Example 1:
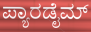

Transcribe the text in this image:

ಪ್ಯಾರಡೈಮ್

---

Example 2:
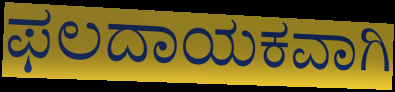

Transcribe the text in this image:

ಫಲದಾಯಕವಾಗಿ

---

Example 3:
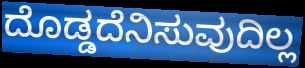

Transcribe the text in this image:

ದೊಡ್ಡದೆನಿಸುವುದಿಲ್ಲ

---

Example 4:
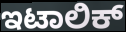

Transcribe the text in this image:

ಇಟಾಲಿಕ್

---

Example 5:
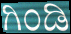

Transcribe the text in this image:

ಗಿಂಡಿ